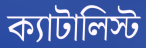
ক্যাটালিস্ট